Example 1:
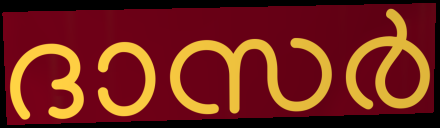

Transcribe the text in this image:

ദാസർ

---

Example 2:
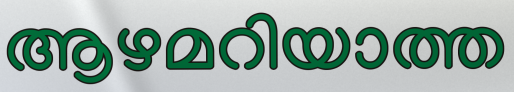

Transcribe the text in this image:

ആഴമറിയാത്ത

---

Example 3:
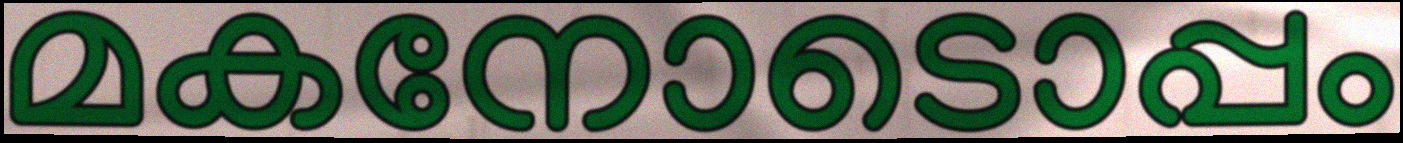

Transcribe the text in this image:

മകനോടൊപ്പം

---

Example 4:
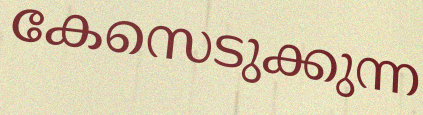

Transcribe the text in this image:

കേസെടുക്കുന്ന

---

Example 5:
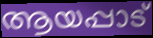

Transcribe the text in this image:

ആയപ്പാട്